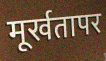
मूर्खतापर